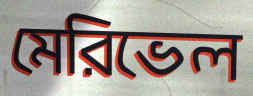
মেরিভেল